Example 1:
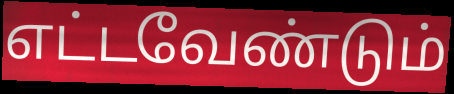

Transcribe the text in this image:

எட்டவேண்டும்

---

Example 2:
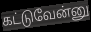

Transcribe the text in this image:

கட்டுவேன்னு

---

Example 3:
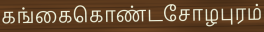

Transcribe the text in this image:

கங்கைகொண்டசோழபுரம்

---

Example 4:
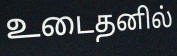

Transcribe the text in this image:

உடைதனில்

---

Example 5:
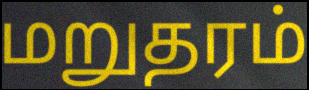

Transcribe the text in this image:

மறுதரம்